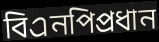
বিএনপিপ্রধান